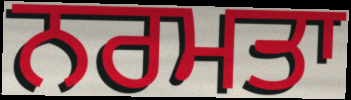
ਨਰਮਤਾ